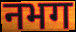
नभग